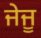
ਜੇਜੂ